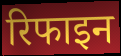
रिफाइन